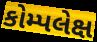
કોમ્પલેક્ષ